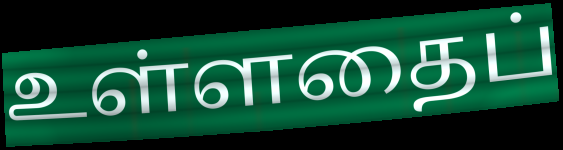
உள்ளதைப்